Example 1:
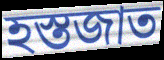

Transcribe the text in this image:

হস্তজাত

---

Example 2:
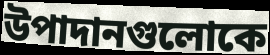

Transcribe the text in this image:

উপাদানগুলোকে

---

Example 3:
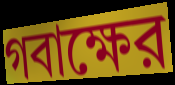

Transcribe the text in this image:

গবাক্ষের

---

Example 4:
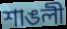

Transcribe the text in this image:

শাঙলী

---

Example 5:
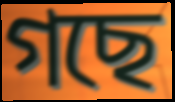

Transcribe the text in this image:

গছে